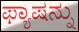
ಫ್ಯಾಷನ್ನು